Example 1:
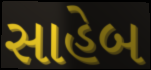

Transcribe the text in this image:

સાહેબ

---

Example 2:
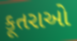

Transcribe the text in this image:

કૂતરાઓ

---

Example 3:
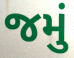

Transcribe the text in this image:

જમું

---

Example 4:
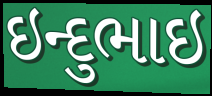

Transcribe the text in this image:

ઇન્દુભાઇ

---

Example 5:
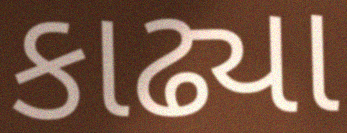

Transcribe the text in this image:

કાઢ્યા